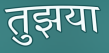
तुझया